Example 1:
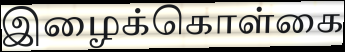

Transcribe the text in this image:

இழைக்கொள்கை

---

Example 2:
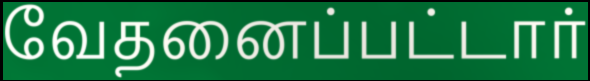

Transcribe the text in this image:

வேதனைப்பட்டார்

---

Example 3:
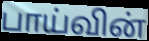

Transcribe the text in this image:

பாய்வின்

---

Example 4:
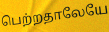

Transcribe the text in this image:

பெற்றதாலேயே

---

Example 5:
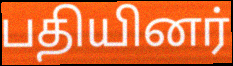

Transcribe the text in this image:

பதியினர்